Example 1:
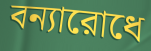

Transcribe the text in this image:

বন্যারোধে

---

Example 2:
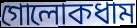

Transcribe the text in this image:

গোলোকধাম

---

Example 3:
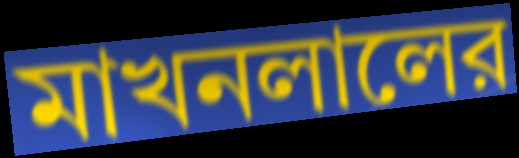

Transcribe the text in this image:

মাখনলালের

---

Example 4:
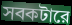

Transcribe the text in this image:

সবকটারে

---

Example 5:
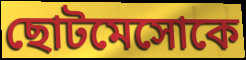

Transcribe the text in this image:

ছোটমেসোকে